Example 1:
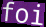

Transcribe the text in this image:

foi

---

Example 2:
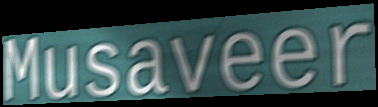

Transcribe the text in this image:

Musaveer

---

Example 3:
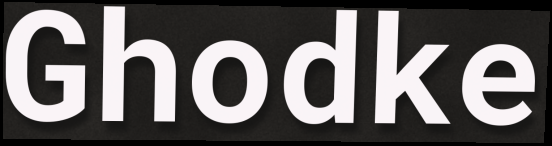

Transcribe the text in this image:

Ghodke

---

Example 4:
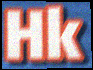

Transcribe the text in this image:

Hk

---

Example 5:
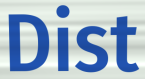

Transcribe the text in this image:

Dist